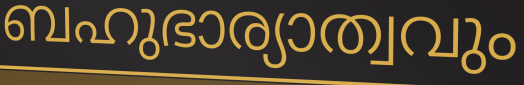
ബഹുഭാര്യാത്വവും